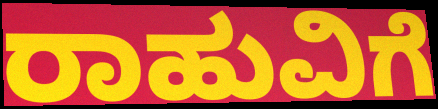
ರಾಹುವಿಗೆ